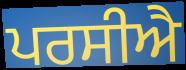
ਪਰਸੀਐ